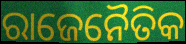
ରାଜେନୈତିକ